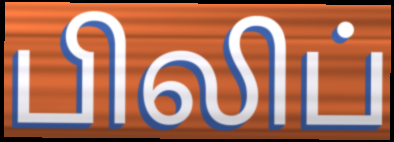
பிலிப்